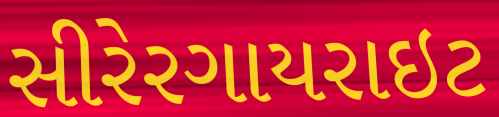
સીરેરગાયરાઇટ